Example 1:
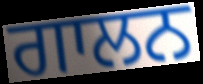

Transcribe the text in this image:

ਗਾਲਨ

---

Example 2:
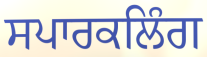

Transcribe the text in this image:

ਸਪਾਰਕਲਿੰਗ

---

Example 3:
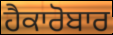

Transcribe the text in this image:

ਹੈਕਾਰੋਬਾਰ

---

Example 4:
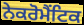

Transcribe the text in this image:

ਨੇਕਰੋਮੈਂਟਿਕ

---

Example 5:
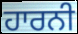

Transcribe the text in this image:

ਹਾਰਨੀ